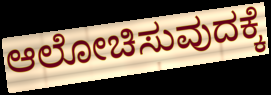
ಆಲೋಚಿಸುವುದಕ್ಕೆ